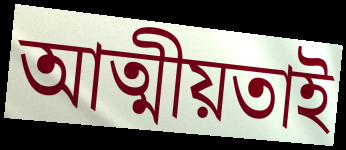
আত্মীয়তাই